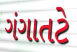
ગંગાતટે